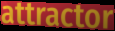
attractor